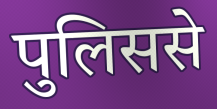
पुलिससे